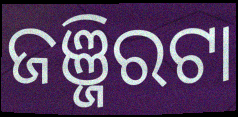
ଜଞ୍ଜିରଟା